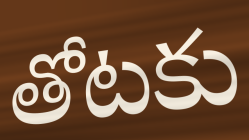
తోటకు